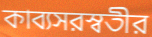
কাব্যসরস্বতীর